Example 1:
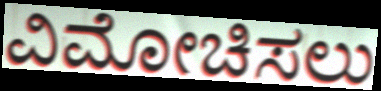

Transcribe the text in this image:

ವಿಮೋಚಿಸಲು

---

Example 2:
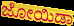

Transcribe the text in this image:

ಜೋಯಿಡಾ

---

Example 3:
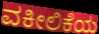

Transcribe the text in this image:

ವಕೀಲಿಕೆಯ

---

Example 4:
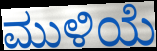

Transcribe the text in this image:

ಮುಳಿಯೆ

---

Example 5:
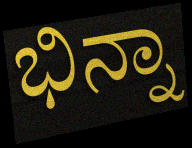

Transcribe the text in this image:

ಭಿನ್ನಾ